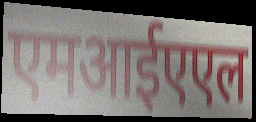
एमआईएएल